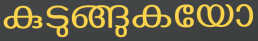
കുടുങ്ങുകയോ